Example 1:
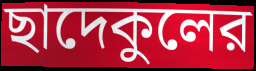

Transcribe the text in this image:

ছাদেকুলের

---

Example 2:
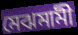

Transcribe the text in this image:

মেঝমামী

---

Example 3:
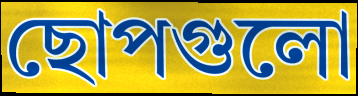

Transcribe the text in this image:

ছোপগুলো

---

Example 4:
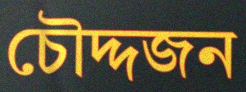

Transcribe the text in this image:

চৌদ্দজন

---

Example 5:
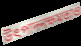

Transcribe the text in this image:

উৎপাদনক্ষমতাও